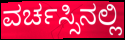
ವರ್ಚಸ್ಸಿನಲ್ಲಿ